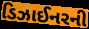
ડિઝાઈનરની